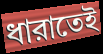
ধারাতেই